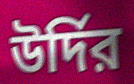
উর্দির